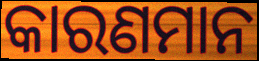
କାରଣମାନ